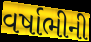
વર્ષાભીની